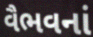
વૈભવનાં